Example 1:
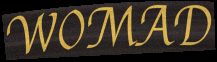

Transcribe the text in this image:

WOMAD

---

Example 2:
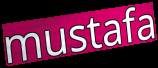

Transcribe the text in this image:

mustafa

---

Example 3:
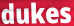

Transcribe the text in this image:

dukes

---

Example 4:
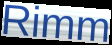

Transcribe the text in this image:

Rimm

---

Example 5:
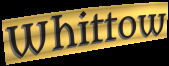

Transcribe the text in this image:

Whittow